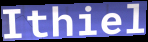
Ithiel